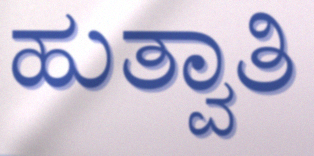
ಹುತ್ವಾತಿ